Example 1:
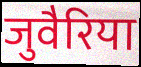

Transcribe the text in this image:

जुवैरिया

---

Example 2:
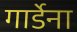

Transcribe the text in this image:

गार्डेना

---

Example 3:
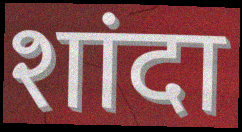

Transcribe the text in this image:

शांदा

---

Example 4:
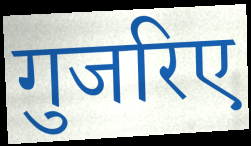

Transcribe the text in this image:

गुजरिए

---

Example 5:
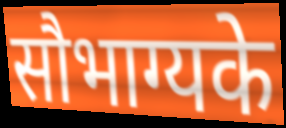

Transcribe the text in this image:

सौभाग्यके